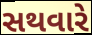
સથવારે